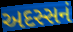
અદસ્સનં